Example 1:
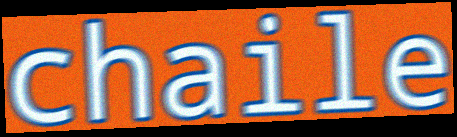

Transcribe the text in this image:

chaile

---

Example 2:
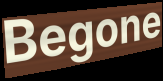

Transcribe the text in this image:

Begone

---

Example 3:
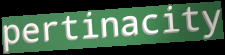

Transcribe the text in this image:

pertinacity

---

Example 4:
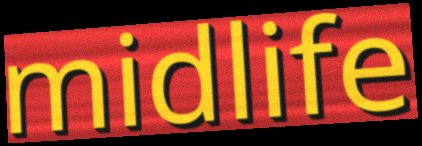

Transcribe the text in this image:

midlife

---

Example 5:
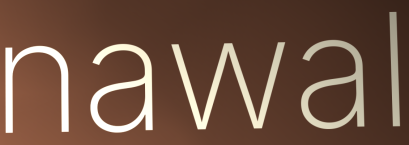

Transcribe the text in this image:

nawal